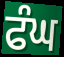
ਫੰਘ